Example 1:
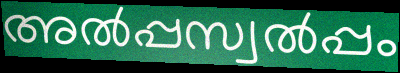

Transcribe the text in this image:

അൽപ്പസ്വൽപ്പം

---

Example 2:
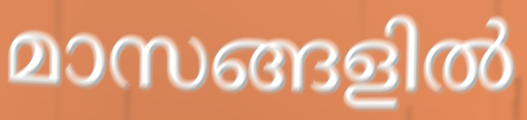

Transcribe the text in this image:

മാസങ്ങളിൽ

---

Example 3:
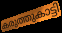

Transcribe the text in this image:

കരുത്തുകാട്ടി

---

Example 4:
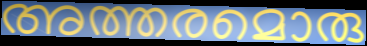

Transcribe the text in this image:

അത്തരമൊരു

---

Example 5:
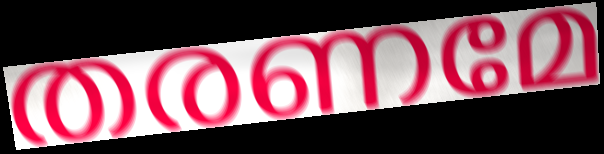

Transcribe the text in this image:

തരണമേ